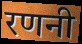
रणनी